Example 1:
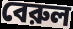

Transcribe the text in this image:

বেরুল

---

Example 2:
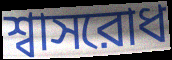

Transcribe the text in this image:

শ্বাসরোধ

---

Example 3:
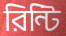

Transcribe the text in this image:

রিন্টি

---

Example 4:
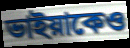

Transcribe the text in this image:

ভাইয়াকেও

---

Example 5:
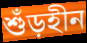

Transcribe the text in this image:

শুঁড়হীন